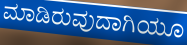
ಮಾಡಿರುವುದಾಗಿಯೂ